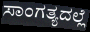
ಸಾಂಗತ್ಯದಲ್ಲೆ